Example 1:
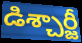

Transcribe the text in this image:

డిశ్చార్జీ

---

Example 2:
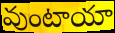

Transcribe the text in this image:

వుంటాయా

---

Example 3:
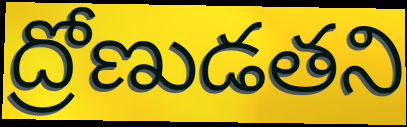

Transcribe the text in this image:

ద్రోణుడతని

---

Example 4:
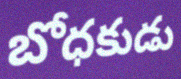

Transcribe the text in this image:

బోధకుడు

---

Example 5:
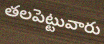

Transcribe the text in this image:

తలపెట్టువారు